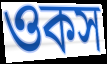
ওকস